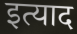
इत्याद